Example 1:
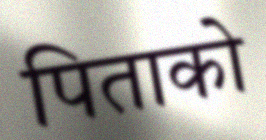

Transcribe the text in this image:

पिताको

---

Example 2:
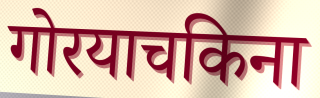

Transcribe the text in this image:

गोरयाचकिना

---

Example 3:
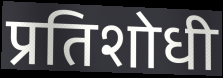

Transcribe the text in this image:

प्रतिशोधी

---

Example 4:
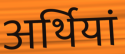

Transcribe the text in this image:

अर्थियां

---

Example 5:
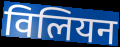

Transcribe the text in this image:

विलियन